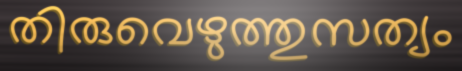
തിരുവെഴുത്തുസത്യം